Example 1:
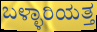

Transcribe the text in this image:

ಬಳ್ಳಾರಿಯತ್ತ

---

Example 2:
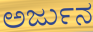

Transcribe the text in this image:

ಅರ್ಜುನ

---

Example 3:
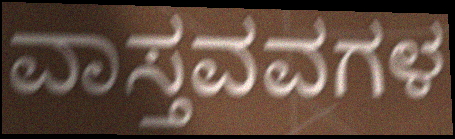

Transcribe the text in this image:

ವಾಸ್ತವವಗಳ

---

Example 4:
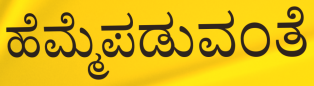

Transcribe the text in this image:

ಹೆಮ್ಮೆಪಡುವಂತೆ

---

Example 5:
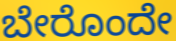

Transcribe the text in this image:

ಬೇರೊಂದೇ